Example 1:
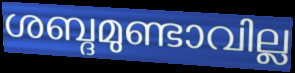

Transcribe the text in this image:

ശബ്ദമുണ്ടാവില്ല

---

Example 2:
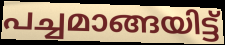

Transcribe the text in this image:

പച്ചമാങ്ങയിട്ട്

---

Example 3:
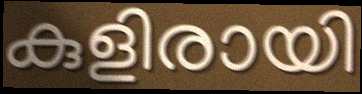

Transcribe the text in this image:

കുളിരായി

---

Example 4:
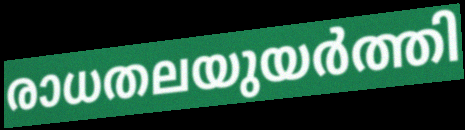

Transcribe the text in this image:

രാധതലയുയർത്തി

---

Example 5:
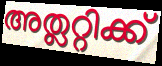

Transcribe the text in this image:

അത്ലറ്റിക്ക്